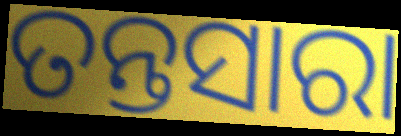
ତନ୍ତସାରା